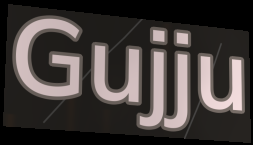
Gujju